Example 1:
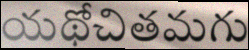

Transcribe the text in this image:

యథోచితమగు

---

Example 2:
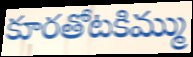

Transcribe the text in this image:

కూరతోటకిమ్ము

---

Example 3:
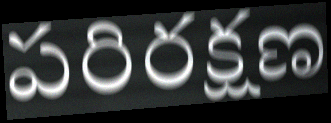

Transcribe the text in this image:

పరిరక్షణ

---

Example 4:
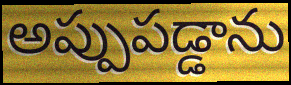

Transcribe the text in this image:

అప్పుపడ్డాను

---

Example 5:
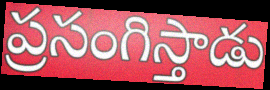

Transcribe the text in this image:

ప్రసంగిస్తాడు